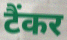
टैंकर